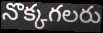
నొక్కగలరు